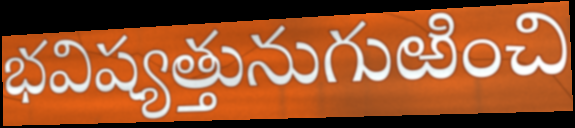
భవిష్యత్తునుగుఱించి